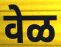
वेळ